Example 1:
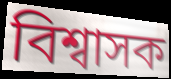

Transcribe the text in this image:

বিশ্বাসক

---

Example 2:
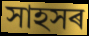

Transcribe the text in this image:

সাহসৰ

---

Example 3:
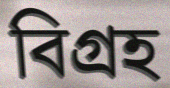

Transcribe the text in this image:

বিগ্ৰহ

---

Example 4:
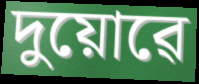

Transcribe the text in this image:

দুয়োৱে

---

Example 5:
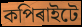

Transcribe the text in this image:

কপিৰাইটে